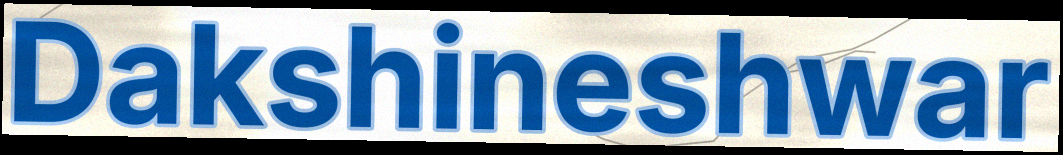
Dakshineshwar